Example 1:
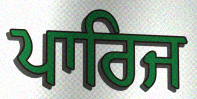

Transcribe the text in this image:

ਪਾਰਿਜ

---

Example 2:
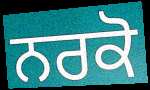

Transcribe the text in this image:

ਨਰਕੋ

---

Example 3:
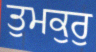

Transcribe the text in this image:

ਤੁਮਕੁਰੁ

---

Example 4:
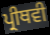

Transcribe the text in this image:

ਪ੍ਰੀਥਵੀ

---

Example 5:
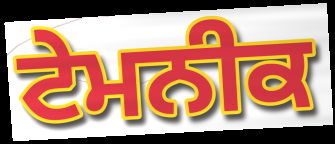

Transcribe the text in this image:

ਟੇਮਨੀਕ